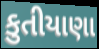
કુતીયાણા